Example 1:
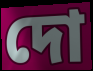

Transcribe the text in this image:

দো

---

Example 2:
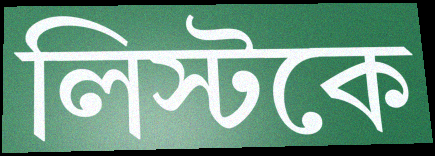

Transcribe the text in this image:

লিস্টকে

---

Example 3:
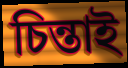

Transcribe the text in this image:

চিন্তাই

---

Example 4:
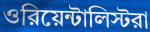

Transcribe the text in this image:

ওরিয়েন্টালিস্টরা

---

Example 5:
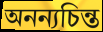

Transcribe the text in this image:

অনন্যচিন্ত